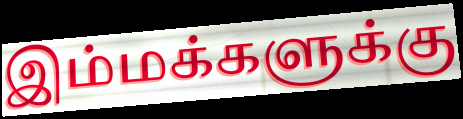
இம்மக்களுக்கு